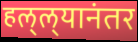
हल्ल्यानंतर